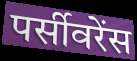
पर्सीवरेंस